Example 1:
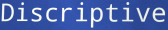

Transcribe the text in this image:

Discriptive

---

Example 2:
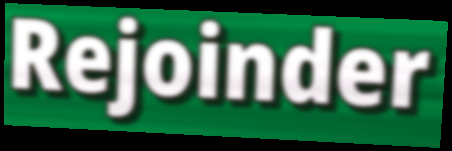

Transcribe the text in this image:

Rejoinder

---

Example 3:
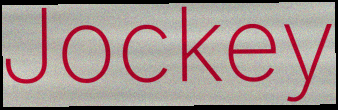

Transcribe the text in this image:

Jockey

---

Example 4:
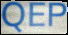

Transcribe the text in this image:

QEP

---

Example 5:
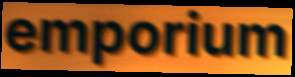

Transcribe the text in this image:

emporium